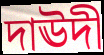
দাঊদী